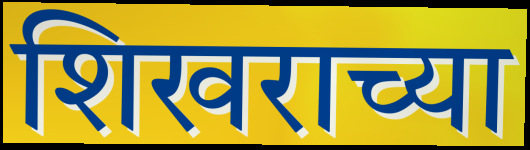
शिखराच्या